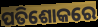
ପତିଶୋକରେ